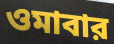
ওমাবার